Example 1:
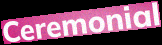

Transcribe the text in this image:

Ceremonial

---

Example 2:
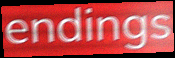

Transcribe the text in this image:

endings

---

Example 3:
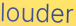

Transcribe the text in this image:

louder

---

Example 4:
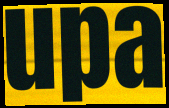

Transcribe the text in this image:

upa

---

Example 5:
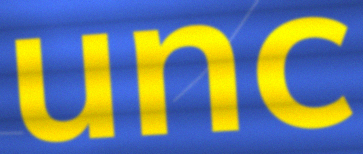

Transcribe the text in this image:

unc